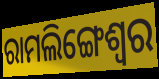
ରାମଲିଙ୍ଗେଶ୍ୱର